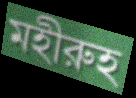
মহীরুহ